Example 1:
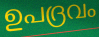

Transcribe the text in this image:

ഉപദ്രവം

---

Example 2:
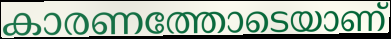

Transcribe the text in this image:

കാരണത്തോടെയാണ്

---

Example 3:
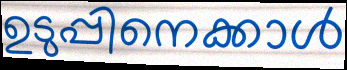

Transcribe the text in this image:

ഉടുപ്പിനെക്കാൾ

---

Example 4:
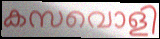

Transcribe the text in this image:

കസവൊളി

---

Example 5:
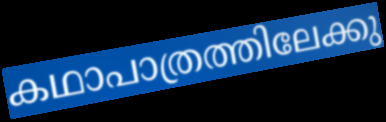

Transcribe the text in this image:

കഥാപാത്രത്തിലേക്കു